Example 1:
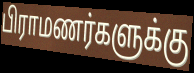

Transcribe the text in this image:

பிராமணர்களுக்கு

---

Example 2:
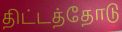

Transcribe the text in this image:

திட்டத்தோடு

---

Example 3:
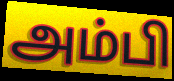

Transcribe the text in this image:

அம்பி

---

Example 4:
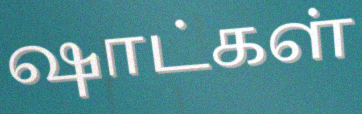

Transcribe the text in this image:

ஷாட்கள்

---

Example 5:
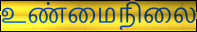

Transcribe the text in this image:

உண்மைநிலை